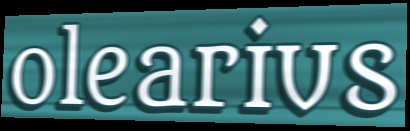
olearius